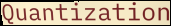
Quantization